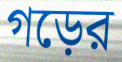
গড়ের